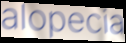
alopecia